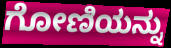
ಗೋಣಿಯನ್ನು